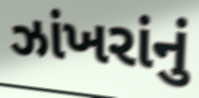
ઝાંખરાંનું